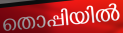
തൊപ്പിയിൽ